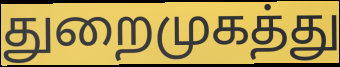
துறைமுகத்து